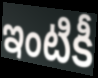
ఇంటికీ